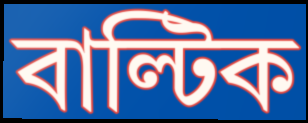
বাল্টিক